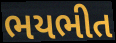
ભયભીત